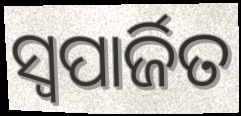
ସ୍ଵପାର୍ଜିତ